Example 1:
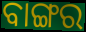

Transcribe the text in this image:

ବାଙ୍ଗର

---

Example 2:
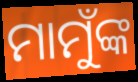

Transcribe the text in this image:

ମାମୁଁଙ୍କ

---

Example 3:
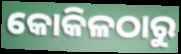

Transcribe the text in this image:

କୋକିଳଠାରୁ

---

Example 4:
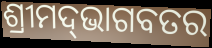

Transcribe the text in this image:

ଶ୍ରୀମଦ୍‌ଭାଗବତର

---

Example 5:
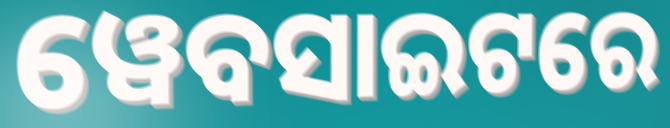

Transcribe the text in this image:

ୱେବସାଇଟରେ